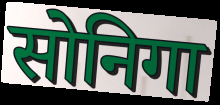
सोनिगा